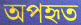
অপহৃত